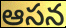
ఆసన